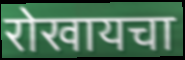
रोखायचा